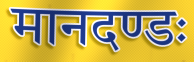
मानदण्डः